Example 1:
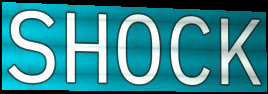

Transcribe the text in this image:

SHOCK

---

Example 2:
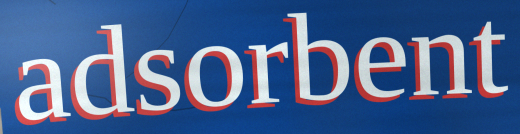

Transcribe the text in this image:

adsorbent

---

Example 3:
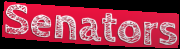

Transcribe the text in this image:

Senators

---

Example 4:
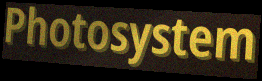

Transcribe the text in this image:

Photosystem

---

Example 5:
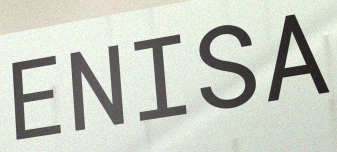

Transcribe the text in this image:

ENISA